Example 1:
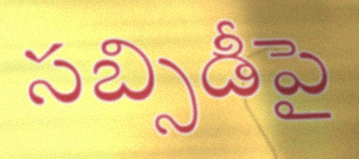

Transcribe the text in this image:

సబ్సిడీపై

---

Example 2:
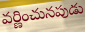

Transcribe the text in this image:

వర్ణించునపుడు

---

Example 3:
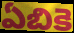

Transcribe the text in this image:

ఏబికె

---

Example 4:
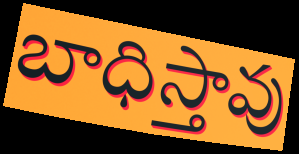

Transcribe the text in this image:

బాధిస్తావు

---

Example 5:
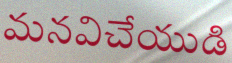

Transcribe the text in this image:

మనవిచేయుడి